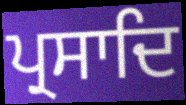
ਪ੍ਰਸਾਦਿ